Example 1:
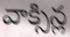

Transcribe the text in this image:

వాక్సిన్ల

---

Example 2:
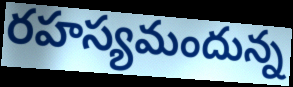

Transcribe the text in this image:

రహస్యమందున్న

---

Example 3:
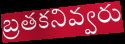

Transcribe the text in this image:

బ్రతకనివ్వరు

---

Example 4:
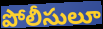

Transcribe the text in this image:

పోలీసులూ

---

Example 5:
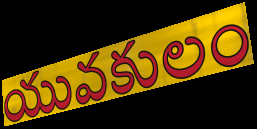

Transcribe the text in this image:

యువకులం